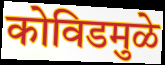
कोविडमुळे